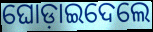
ଘୋଡ଼ାଇଦେଲେ